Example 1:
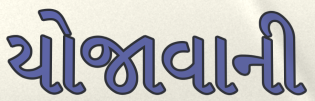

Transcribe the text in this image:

યોજાવાની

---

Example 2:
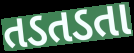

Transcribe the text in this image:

તડતડતા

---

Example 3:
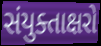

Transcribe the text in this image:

સંયુક્તાક્ષરો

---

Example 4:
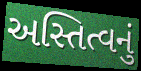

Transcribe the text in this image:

અસ્તિત્વનું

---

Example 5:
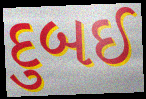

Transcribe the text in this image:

દુબઈ